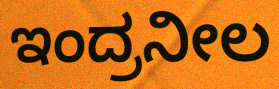
ಇಂದ್ರನೀಲ